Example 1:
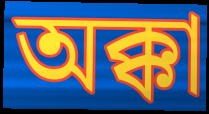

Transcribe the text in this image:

অক্কা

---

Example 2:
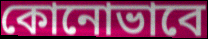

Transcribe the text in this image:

কোনোভাবে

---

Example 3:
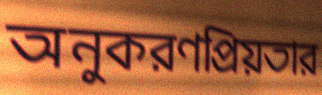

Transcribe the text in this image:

অনুকরণপ্রিয়তার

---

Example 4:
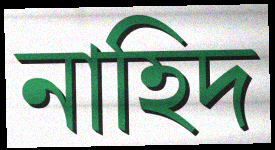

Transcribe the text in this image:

নাহিদ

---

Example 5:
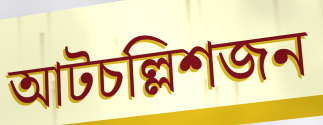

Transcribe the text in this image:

আটচল্লিশজন